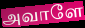
அவாளே